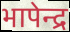
भापेन्द्र